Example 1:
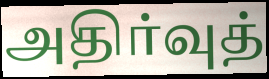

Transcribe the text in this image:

அதிர்வுத்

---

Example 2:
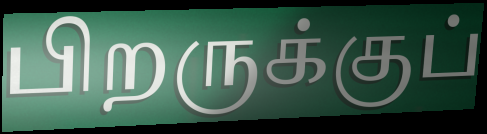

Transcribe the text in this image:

பிறருக்குப்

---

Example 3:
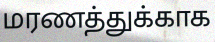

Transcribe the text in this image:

மரணத்துக்காக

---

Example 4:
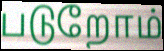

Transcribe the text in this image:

படுறோம்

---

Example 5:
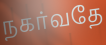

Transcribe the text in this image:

நகர்வதே